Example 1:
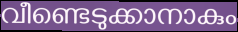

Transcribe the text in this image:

വീണ്ടെടുക്കാനാകും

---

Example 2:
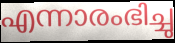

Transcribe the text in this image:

എന്നാരംഭിച്ചു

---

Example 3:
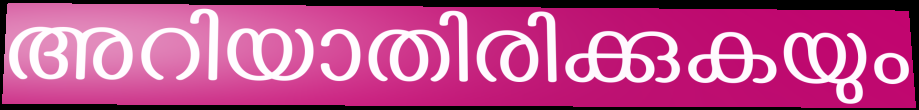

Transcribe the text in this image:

അറിയാതിരിക്കുകയും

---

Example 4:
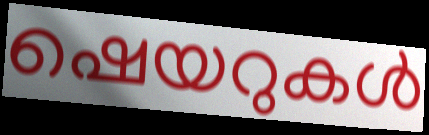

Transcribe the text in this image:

ഷെയറുകൾ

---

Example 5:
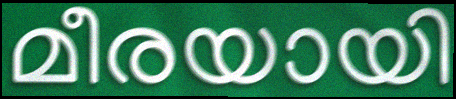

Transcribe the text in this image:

മീരയായി